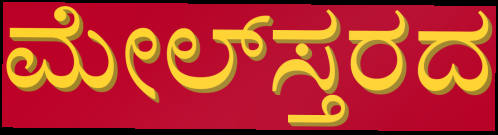
ಮೇಲ್‌ಸ್ತರದ